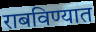
राबविण्‍यात